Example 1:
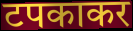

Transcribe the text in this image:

टपकाकर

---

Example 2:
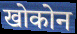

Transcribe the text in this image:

खोकोन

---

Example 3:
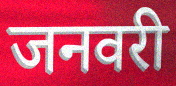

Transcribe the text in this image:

जनवरी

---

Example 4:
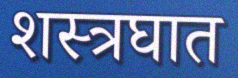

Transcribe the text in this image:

शस्त्रघात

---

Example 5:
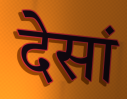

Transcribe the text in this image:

देसां